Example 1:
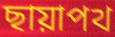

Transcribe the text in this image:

ছায়াপথ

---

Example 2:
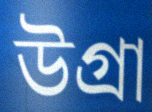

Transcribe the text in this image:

উগ্রা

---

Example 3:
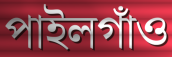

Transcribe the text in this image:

পাইলগাঁও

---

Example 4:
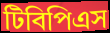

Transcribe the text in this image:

টিবিপিএস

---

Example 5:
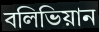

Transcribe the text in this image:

বলিভিয়ান